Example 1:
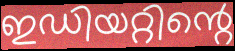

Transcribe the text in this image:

ഇഡിയറ്റിന്റെ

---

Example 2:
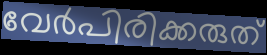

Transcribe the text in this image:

വേർപിരിക്കരുത്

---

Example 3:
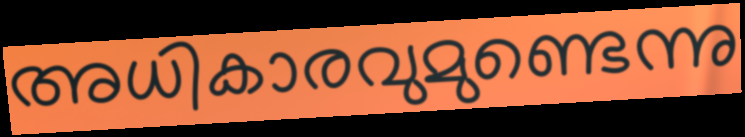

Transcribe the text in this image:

അധികാരവുമുണ്ടെന്നു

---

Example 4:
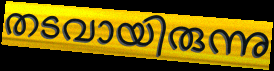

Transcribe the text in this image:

തടവായിരുന്നു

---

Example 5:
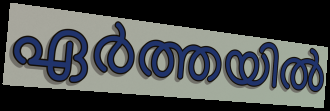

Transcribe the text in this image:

ഏർത്തയിൽ